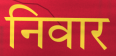
निवार